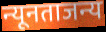
न्यूनताजन्य